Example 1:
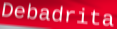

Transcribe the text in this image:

Debadrita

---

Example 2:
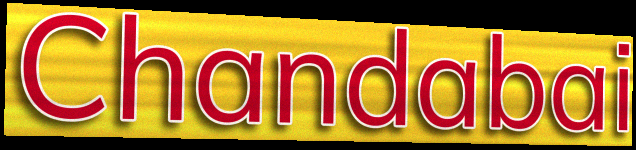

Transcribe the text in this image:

Chandabai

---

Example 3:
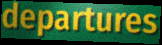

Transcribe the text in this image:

departures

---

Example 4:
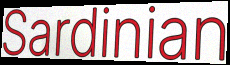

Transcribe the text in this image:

Sardinian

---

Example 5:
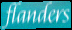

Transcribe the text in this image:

flanders